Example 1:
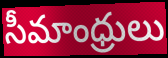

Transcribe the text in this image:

సీమాంధ్రులు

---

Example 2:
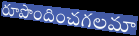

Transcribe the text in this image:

రూపొందించగలమా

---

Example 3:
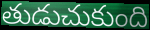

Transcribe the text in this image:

తుడుచుకుంది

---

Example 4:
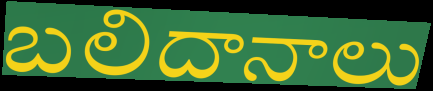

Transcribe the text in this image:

బలిదానాలు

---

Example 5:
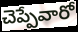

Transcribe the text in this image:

చెప్పేవారో